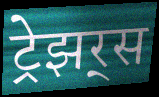
ट्रेझर्स